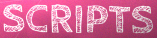
SCRIPTS